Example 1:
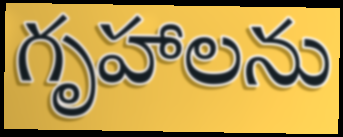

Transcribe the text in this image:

గృహాలను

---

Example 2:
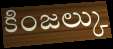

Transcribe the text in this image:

కింజల్కు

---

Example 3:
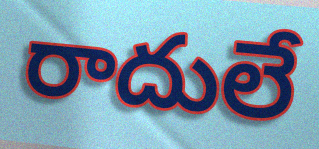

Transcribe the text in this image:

రాదులే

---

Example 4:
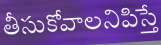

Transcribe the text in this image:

తీసుకోవాలనిపిస్తే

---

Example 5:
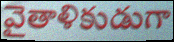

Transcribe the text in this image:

వైతాళికుడుగా